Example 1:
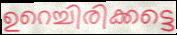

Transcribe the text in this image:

ഉറെച്ചിരിക്കട്ടെ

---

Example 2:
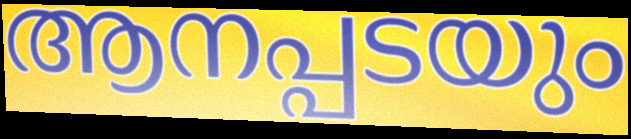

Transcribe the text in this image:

ആനപ്പടയും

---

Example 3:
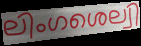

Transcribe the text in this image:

ലിംഗശെല്വി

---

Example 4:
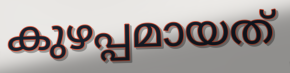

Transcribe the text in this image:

കുഴപ്പമായത്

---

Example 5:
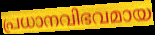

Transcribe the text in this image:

പ്രധാനവിഭവമായ